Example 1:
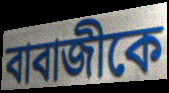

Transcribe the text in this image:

বাবাজীকে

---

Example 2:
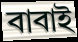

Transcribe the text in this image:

বাবাই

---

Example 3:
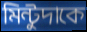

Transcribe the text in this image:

মিন্টুদাকে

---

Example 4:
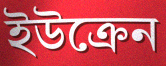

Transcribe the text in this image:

ইউক্রেন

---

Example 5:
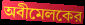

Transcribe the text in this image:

অবীমেলকের